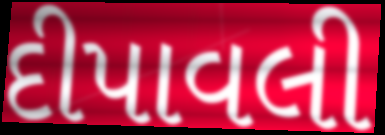
દીપાવલી